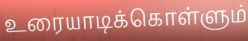
உரையாடிக்கொள்ளும்